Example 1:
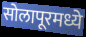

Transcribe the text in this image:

सोलापूरमध्ये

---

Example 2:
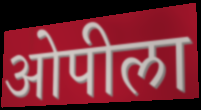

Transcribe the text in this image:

ओपीला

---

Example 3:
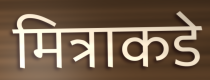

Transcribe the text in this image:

मित्राकडे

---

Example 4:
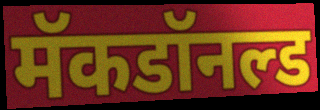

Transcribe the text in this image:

मॅकडॉनल्ड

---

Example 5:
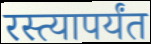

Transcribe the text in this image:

रस्त्यापर्यंत